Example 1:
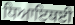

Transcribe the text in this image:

ਧਿਆਇਥਈ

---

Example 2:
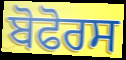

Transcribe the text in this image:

ਬੋਫੋਰਸ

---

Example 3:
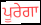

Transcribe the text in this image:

ਪੂਰੇਗਾ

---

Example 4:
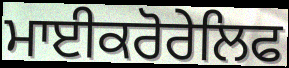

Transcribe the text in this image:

ਮਾਈਕਰੋਰੇਲਿਫ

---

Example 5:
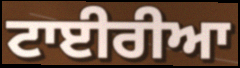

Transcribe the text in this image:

ਟਾਈਰੀਆ